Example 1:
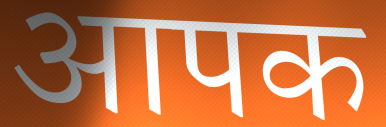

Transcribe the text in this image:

आपक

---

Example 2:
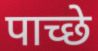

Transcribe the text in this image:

पाच्छे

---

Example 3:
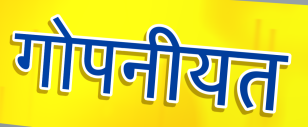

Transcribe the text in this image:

गोपनीयत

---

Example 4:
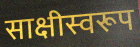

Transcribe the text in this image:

साक्षीस्वरूप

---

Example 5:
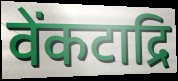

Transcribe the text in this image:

वेंकटाद्रि